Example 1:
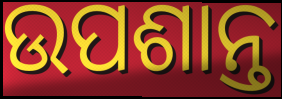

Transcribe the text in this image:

ଉପଶାନ୍ତ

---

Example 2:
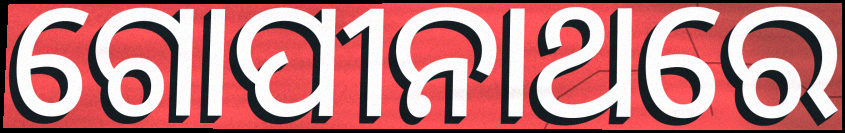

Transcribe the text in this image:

ଗୋପୀନାଥରେ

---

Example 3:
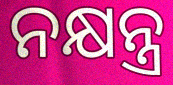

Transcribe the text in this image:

ନକ୍ଷନ୍ତ୍ର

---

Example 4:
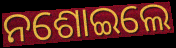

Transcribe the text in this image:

ନଶୋଇଲେ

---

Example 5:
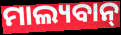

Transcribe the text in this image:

ମାଲ୍ୟବାନ୍